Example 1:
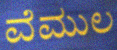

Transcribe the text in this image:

ವೆಮುಲ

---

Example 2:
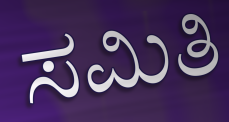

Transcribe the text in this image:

ಸಮಿತಿ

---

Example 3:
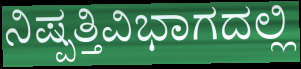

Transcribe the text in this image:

ನಿಷ್ಪತ್ತಿವಿಭಾಗದಲ್ಲಿ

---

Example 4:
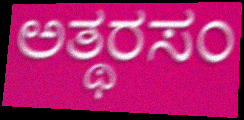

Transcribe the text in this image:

ಅತ್ಥರಸಂ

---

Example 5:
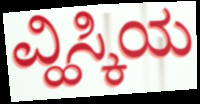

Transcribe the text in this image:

ವ್ಹಿಸ್ಕಿಯ